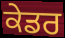
ਕੇਡਰ